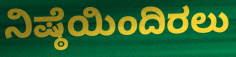
ನಿಷ್ಠೆಯಿಂದಿರಲು